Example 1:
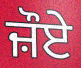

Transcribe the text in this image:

ਜ਼ੌਏ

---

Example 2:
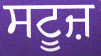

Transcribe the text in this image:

ਸਟੂਜ਼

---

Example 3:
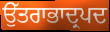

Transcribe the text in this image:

ਉੱਤਰਾਭਾਦ੍ਰਪਦ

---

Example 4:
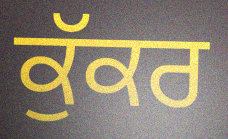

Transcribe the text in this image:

ਕੁੱਕਰ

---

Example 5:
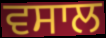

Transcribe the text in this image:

ਵਸਾਲ